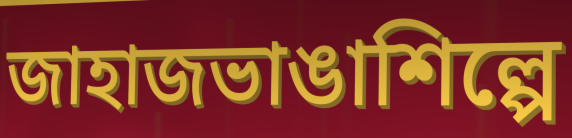
জাহাজভাঙাশিল্পে